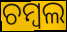
ଚମ୍ବଲ